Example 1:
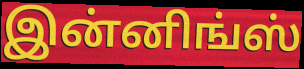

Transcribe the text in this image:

இன்னிங்ஸ்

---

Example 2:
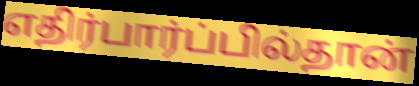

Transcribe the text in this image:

எதிர்பார்ப்பில்தான்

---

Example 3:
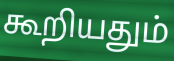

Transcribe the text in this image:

கூறியதும்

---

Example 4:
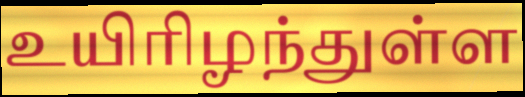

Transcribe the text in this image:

உயிரிழந்துள்ள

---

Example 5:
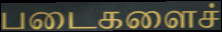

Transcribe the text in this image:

படைகளைச்